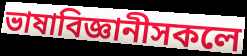
ভাষাবিজ্ঞানীসকলে